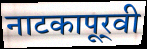
नाटकापूर्वी